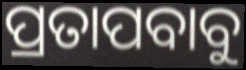
ପ୍ରତାପବାବୁ